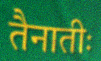
तैनातीः